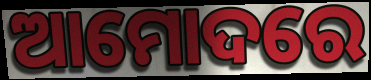
ଆମୋଦରେ